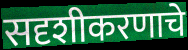
सदृशीकरणाचे